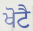
ਖੋਟੈ